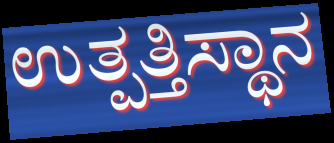
ಉತ್ಪತ್ತಿಸ್ಥಾನ